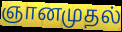
ஞானமுதல்